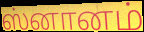
ஸ்னானம்